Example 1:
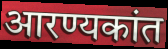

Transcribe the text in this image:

आरण्यकांत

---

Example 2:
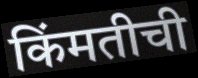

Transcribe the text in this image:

किंमतीची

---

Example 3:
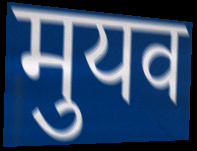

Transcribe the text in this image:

मुयव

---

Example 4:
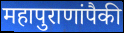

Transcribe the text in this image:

महापुराणांपैकी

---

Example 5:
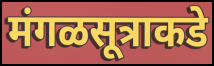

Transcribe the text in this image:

मंगळसूत्राकडे